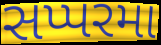
સપ્પરમા